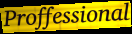
Proffessional